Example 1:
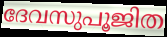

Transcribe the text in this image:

ദേവസുപൂജിത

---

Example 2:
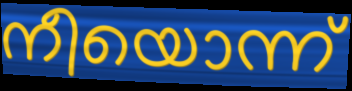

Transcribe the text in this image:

നീയൊന്ന്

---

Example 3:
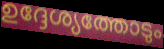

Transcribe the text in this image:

ഉദ്ദേശ്യത്തോടും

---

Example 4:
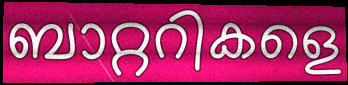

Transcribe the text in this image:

ബാറ്ററികളെ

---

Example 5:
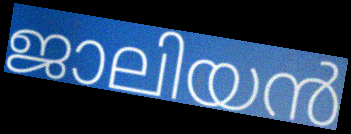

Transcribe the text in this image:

ജാലിയൻ